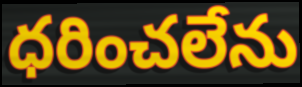
ధరించలేను